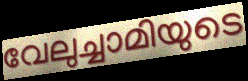
വേലുച്ചാമിയുടെ